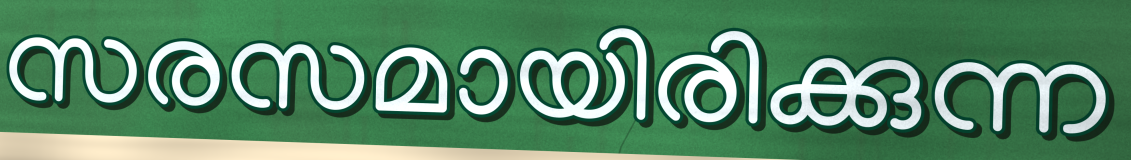
സരസമായിരിക്കുന്ന